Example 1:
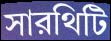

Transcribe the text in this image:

সারথিটি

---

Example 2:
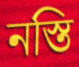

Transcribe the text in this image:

নস্তি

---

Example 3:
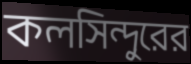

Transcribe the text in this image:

কলসিন্দুরের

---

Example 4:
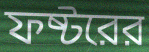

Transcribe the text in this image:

ফষ্টরের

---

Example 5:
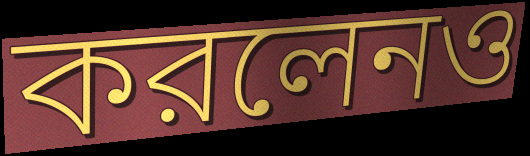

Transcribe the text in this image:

করলেনও